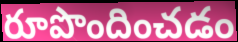
రూపొందించడం